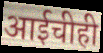
आईचीही